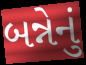
બન્નેનું